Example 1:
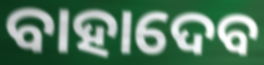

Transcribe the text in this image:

ବାହାଦେବ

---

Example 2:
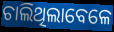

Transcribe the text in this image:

ଚାଲିଥିଲାବେଳେ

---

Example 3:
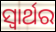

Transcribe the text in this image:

ସ୍ଵାର୍ଥର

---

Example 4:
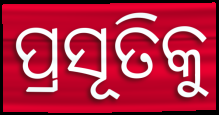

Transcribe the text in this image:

ପ୍ରସୂତିକୁ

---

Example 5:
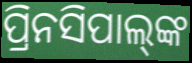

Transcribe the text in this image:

ପ୍ରିନସିପାଲ୍‍ଙ୍କ